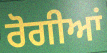
ਰੋਗੀਆਂ